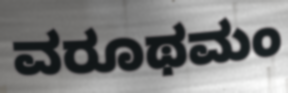
ವರೂಥಮಂ